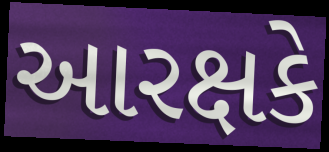
આરક્ષકે